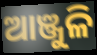
ଆଞ୍ଜୁଳି